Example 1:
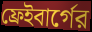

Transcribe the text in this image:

ফ্রেইবার্গের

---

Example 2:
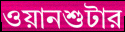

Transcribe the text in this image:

ওয়ানশুটার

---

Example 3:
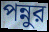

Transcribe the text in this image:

পন্নুর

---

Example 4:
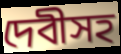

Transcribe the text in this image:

দেবীসহ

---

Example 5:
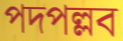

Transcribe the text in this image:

পদপল্লব